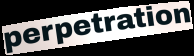
perpetration